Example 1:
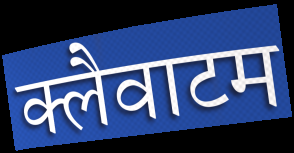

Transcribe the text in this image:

क्लैवाटम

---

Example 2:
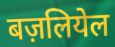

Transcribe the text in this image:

बज़लियेल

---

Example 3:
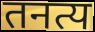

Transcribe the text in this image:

तनत्य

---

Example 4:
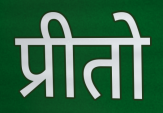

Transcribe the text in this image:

प्रीतो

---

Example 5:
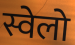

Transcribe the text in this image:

स्वेलो